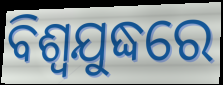
ବିଶ୍ବଯୁଦ୍ଧରେ